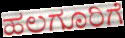
ಹಲಗೂರಿಗೆ